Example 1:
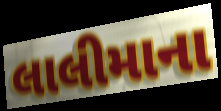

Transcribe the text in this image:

લાલીમાના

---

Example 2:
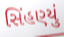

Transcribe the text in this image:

સિંહણ્યું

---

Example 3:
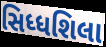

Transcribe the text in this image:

સિધ્ધશિલા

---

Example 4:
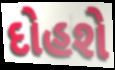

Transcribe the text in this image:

દોહશે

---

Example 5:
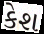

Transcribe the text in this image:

કેશ